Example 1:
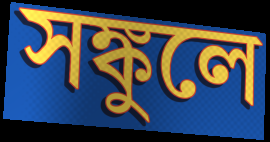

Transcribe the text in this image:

সঙ্কুলে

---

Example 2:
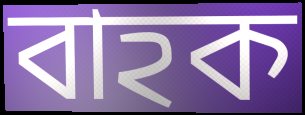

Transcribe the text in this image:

বাহক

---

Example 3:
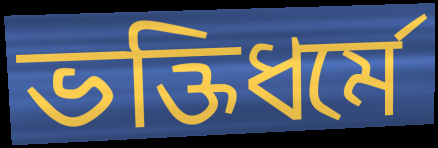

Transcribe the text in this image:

ভক্তিধর্মে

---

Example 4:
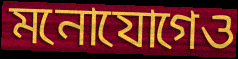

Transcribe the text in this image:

মনোযোগেও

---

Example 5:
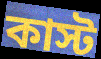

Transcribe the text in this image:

কাস্ট